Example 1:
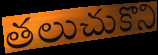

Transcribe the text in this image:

తలుచుకొని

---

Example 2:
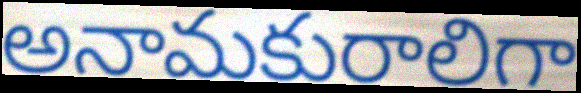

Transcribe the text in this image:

అనామకురాలిగా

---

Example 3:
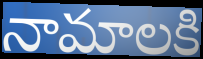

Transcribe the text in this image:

నామాలకి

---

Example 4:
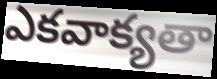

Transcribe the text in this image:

ఎకవాక్యతా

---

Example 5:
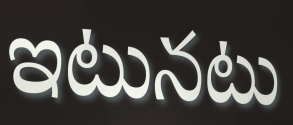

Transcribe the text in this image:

ఇటునటు